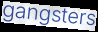
gangsters